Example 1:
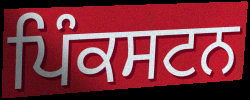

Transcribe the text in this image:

ਪਿੰਕਸਟਨ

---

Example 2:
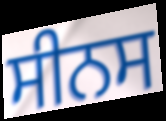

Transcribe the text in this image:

ਸੀਨਸ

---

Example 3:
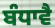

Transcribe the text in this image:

ਬੰਧਾਵੈ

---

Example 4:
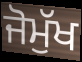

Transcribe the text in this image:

ਜੋਮੁੱਖ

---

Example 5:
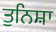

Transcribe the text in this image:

ਤੁਨਿਸ਼ਾ